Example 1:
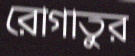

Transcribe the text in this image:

রোগাতুর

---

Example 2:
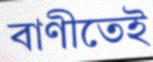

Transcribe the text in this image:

বাণীতেই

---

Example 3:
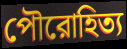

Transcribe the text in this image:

পৌরোহিত্য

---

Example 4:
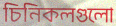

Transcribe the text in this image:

চিনিকলগুলো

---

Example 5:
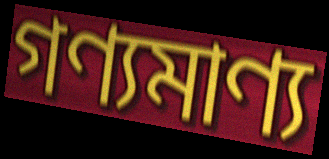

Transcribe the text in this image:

গণ্যমাণ্য